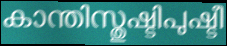
കാന്തിസ്തുഷ്ടിപുഷ്ടീ